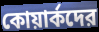
কোয়ার্কদের